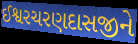
ઈશ્વરચરણદાસજીને